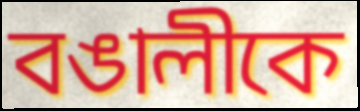
বঙালীকে